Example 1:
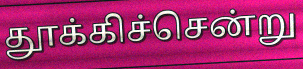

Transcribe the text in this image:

தூக்கிச்சென்று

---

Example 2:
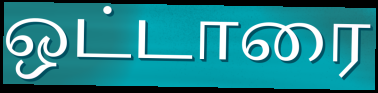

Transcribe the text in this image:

ஒட்டாரை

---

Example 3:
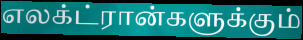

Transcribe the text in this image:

எலக்ட்ரான்களுக்கும்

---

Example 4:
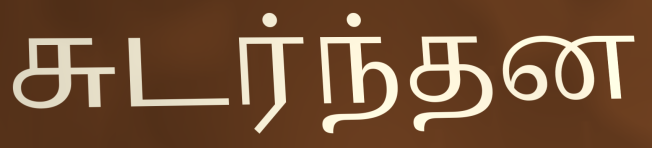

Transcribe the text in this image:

சுடர்ந்தன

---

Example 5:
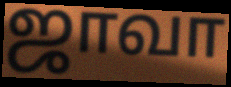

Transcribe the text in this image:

ஜாவா